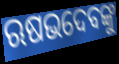
ଋଷଭଦେବଙ୍କୁ